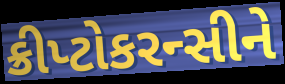
ક્રીપ્ટોકરન્સીને